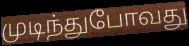
முடிந்துபோவது